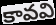
కావవి